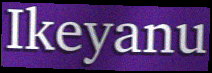
Ikeyanu